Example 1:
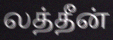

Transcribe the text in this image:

லத்தீன்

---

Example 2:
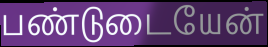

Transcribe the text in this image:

பண்டுடையேன்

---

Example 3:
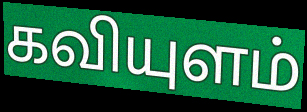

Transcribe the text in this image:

கவியுளம்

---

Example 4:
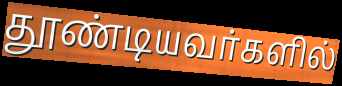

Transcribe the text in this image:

தூண்டியவர்களில்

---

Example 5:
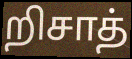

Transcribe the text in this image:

றிசாத்